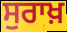
ਸੁਰਾਖ਼